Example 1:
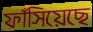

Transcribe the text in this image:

ফাঁসিয়েছে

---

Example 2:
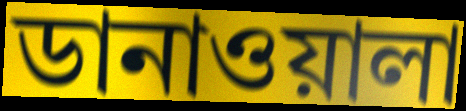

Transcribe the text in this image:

ডানাওয়ালা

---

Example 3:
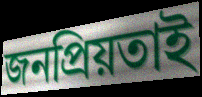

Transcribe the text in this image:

জনপ্রিয়তাই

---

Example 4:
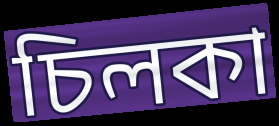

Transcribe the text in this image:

চিলকা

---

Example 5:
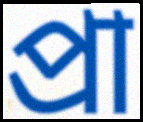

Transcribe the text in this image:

প্রা